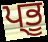
ਪ੍ਭੂ